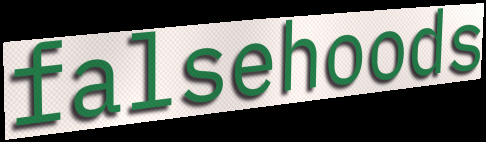
falsehoods